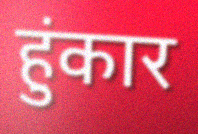
हुंकार